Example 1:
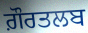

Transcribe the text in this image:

ਗ਼ੌਰਤਲਬ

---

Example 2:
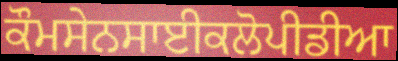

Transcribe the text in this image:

ਕੌਮਸੇਨਸਾਈਕਲੋਪੀਡੀਆ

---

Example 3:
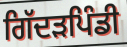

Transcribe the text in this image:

ਗਿੱਦੜਪਿੰਡੀ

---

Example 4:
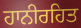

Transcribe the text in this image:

ਹਾਨੀਰਹਿਤ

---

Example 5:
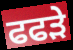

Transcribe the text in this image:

ਫਫਡ਼ੇ